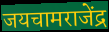
जयचामराजेंद्र